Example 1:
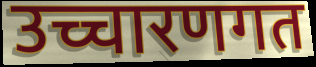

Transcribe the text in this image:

उच्चारणगत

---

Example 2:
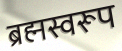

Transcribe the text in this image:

ब्रह्मस्वरूप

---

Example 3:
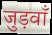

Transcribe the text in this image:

जुड़वाँ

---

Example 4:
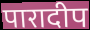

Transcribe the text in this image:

पारादीप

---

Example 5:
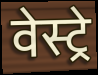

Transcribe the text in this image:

वेस्ट्रे